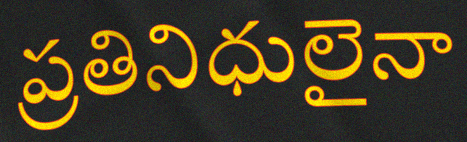
ప్రతినిధులైనా